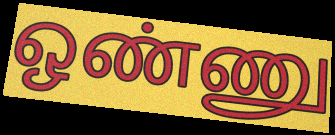
ஒண்ணு